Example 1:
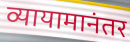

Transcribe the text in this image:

व्यायामानंतर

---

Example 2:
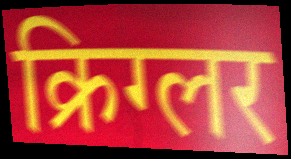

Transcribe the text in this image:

क्रिग्लर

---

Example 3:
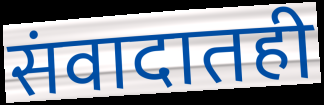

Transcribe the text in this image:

संवादातही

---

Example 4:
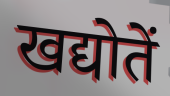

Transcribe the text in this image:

खद्योतें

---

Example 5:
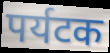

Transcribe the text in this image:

पर्यटक